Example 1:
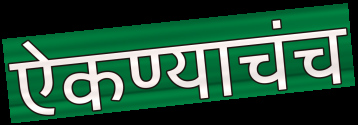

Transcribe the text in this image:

ऐकण्याचंच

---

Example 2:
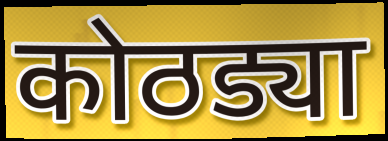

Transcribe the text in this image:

कोठड्या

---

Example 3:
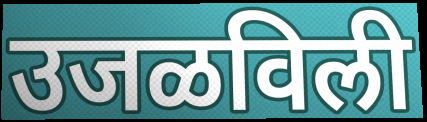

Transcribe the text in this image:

उजळविली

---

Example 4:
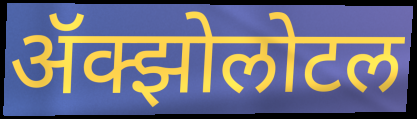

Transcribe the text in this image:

ॲक्झोलोटल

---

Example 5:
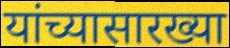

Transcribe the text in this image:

यांच्यासारख्या